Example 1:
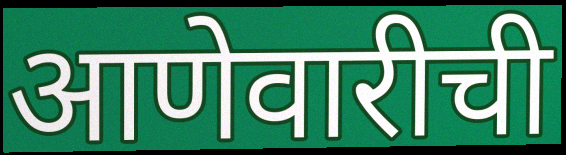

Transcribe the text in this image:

आणेवारीची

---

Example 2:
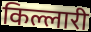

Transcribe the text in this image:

किल्लारी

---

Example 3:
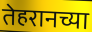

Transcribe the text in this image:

तेहरानच्या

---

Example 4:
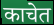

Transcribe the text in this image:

काचेत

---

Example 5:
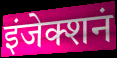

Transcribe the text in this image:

इंजेक्शनं